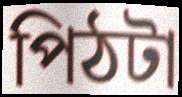
পিঠটা